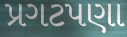
પ્રગટપણા